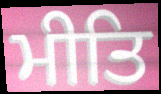
ਮੀਤਿ